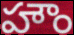
హౌం